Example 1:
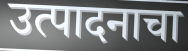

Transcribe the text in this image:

उत्पादनाचा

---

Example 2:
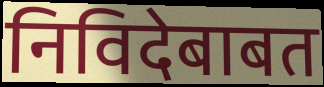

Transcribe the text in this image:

निविदेबाबत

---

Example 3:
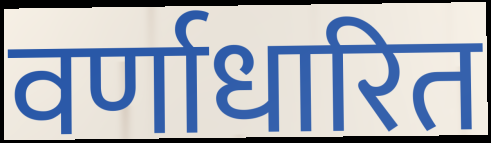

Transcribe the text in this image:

वर्णाधारित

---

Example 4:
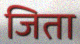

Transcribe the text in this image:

जिता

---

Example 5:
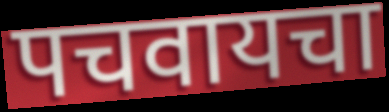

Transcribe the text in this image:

पचवायचा